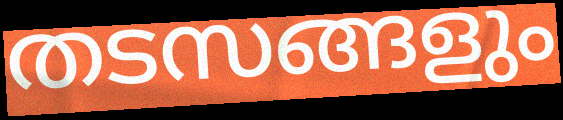
തടസങ്ങളും